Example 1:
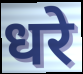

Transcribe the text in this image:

धरे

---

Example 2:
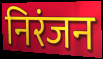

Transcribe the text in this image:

निरंजन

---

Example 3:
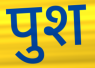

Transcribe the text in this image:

पुश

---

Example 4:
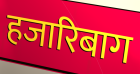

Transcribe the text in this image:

हजारिबाग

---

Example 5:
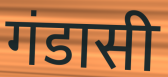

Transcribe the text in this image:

गंडासी